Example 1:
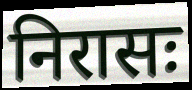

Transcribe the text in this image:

निरासः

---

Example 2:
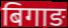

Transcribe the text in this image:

बिगाङ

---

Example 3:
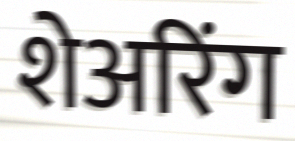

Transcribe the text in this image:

शेअरिंग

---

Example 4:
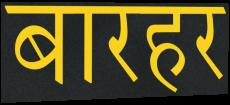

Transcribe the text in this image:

बारहर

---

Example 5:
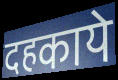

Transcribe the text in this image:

दहकाये